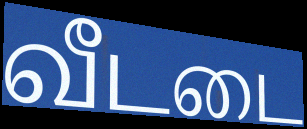
வீடடை